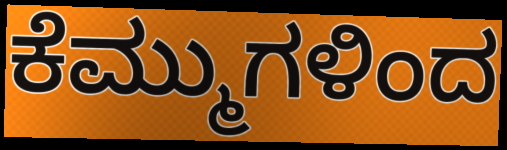
ಕೆಮ್ಮುಗಳಿಂದ